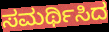
ಸಮರ್ಥಿಸಿದ